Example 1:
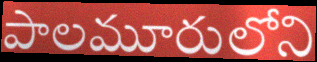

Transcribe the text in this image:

పాలమూరులోని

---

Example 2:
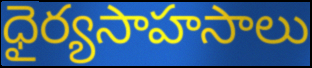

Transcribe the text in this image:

ధైర్యసాహసాలు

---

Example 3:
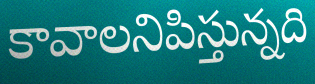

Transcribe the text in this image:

కావాలనిపిస్తున్నది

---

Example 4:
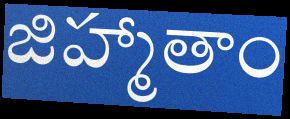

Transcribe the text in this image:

జిహ్మాతాం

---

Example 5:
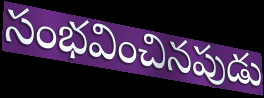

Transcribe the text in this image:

సంభవించినపుడు